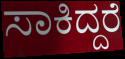
ಸಾಕಿದ್ದರೆ